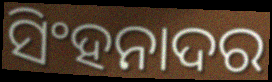
ସିଂହନାଦର